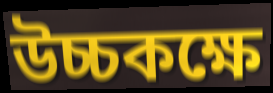
উচ্চকক্ষে